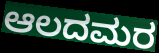
ಆಲದಮರ